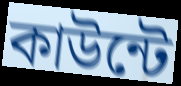
কাউন্টে